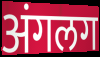
अंगलग